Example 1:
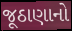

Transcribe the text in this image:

જૂઠાણાનો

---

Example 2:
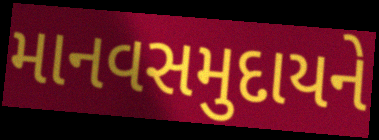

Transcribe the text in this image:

માનવસમુદાયને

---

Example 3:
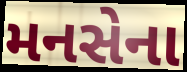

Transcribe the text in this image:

મનસેના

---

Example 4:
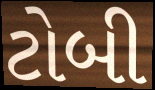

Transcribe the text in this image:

ટોબી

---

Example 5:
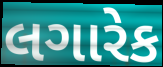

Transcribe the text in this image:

લગારેક